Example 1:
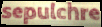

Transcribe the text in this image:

sepulchre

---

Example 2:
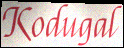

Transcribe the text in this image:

Kodugal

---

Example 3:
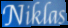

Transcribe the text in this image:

Niklas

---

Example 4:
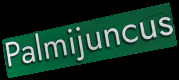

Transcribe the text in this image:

Palmijuncus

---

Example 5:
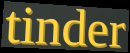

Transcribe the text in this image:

tinder